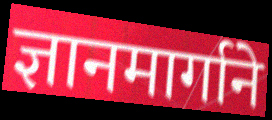
ज्ञानमार्गाने